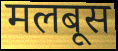
मलबूस